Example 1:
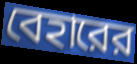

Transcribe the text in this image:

বেহারের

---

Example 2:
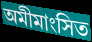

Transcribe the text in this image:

অমীমাংসিত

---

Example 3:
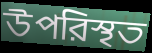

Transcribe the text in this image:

উপরিস্থত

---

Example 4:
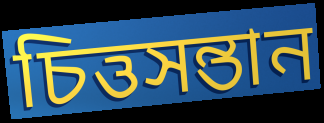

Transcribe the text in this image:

চিত্তসন্তান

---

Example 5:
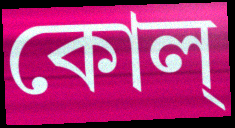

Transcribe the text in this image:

কোল্